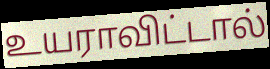
உயராவிட்டால்